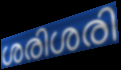
ശരിശരി